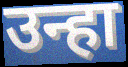
उन्हा